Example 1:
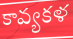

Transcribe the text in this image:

కావ్యకళ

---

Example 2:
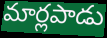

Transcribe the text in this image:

మార్లపాడు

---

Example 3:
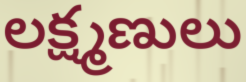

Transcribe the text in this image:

లక్ష్మణులు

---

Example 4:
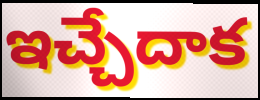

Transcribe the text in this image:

ఇచ్చేదాక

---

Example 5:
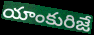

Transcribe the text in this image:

యాంకురిజే